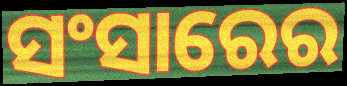
ସଂସାରେର